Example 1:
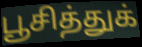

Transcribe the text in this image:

பூசித்துக்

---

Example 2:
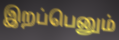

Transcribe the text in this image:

இறப்பெனும்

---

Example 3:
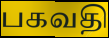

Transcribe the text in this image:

பகவதி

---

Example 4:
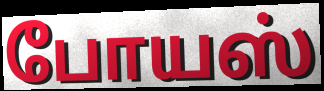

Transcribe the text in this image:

போயஸ்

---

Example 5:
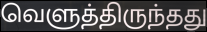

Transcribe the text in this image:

வெளுத்திருந்தது